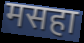
मसहा